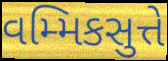
વમ્મિકસુત્તે